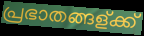
പ്രഭാതങ്ങള്ക്ക്